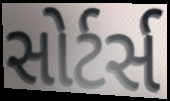
સોર્ટર્સ